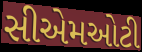
સીએમઓટી